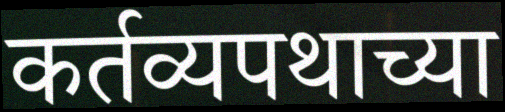
कर्तव्यपथाच्या